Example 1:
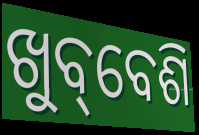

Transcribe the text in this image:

ଖୁବ୍‌ବେଶି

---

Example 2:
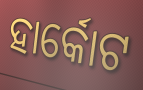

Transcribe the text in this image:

ହାର୍କୋଟ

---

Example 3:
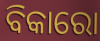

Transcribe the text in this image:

ବିକାରୋ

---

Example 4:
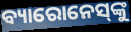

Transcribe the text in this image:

ବ୍ୟାରୋନେସ୍‌ଙ୍କୁ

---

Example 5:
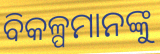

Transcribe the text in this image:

ବିକଳ୍ପମାନଙ୍କୁ